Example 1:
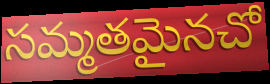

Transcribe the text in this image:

సమ్మతమైనచో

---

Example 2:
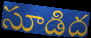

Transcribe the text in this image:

సూడిద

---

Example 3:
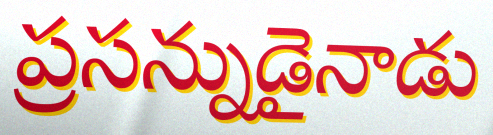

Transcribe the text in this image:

ప్రసన్నుడైనాడు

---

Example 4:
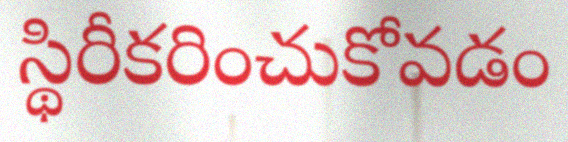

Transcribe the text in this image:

స్థిరీకరించుకోవడం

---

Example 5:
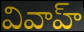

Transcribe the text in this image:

వివాహ్